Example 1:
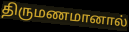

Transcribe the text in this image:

திருமணமானால்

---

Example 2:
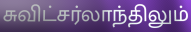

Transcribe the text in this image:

சுவிட்சர்லாந்திலும்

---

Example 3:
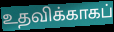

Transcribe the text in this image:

உதவிக்காகப்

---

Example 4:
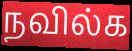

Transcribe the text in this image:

நவில்க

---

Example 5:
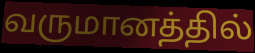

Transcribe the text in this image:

வருமானத்தில்